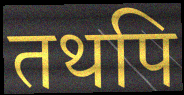
तथपि